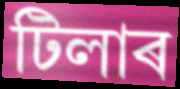
টিলাৰ